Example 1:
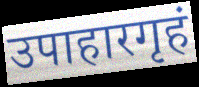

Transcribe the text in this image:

उपाहारगृहं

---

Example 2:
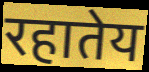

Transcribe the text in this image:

रहातेय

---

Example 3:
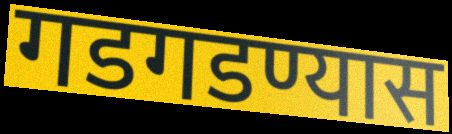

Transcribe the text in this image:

गडगडण्यास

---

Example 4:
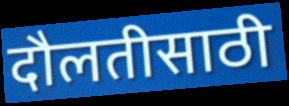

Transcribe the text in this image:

दौलतीसाठी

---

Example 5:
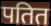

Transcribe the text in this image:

पतित